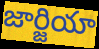
జార్జియా